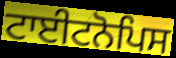
ਟਾਈਟਨੋਪਿਸ